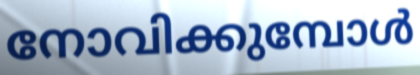
നോവിക്കുമ്പോൾ